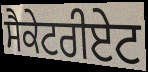
ਸੈਕੇਟਰੀਏਟ